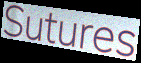
Sutures